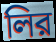
লির